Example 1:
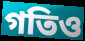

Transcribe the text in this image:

গতিও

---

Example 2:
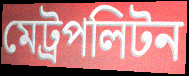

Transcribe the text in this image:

মেট্রপলিটন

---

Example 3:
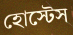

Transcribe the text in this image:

হোস্টেস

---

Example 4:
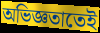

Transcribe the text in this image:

অভিজ্ঞতাতেই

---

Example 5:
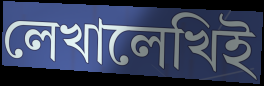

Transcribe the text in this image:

লেখালেখিই